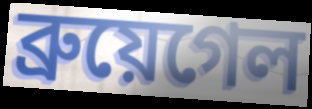
ব্রুয়েগেল